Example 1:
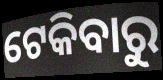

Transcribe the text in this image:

ଟେକିବାରୁ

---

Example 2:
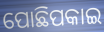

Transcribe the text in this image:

ପୋଛିପକାଇ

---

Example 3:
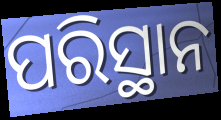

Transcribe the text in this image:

ପରିସ୍ଥାନ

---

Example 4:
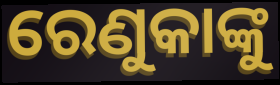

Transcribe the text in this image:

ରେଣୁକାଙ୍କୁ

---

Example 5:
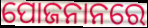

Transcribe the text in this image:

ପୋଜନାନରେ